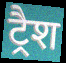
ट्रैश